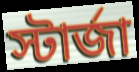
স্টার্জা